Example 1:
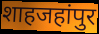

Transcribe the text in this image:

शाहजहांपुर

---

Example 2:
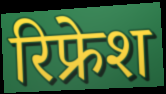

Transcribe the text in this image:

रिफ्रेश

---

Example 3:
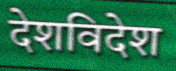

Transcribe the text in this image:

देशविदेश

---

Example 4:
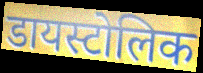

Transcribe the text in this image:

डायस्टोलिक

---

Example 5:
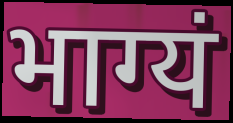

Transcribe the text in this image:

भाग्यं